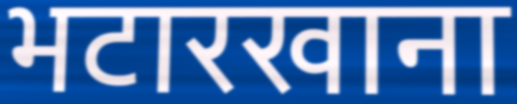
भटारखाना